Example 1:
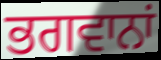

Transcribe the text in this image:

ਭਗਵਾਨਾਂ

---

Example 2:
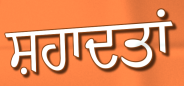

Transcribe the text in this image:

ਸ਼ਹਾਦਤਾਂ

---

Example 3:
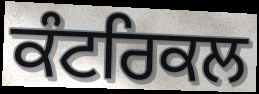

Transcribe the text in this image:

ਕੰਟਰਿਕਲ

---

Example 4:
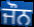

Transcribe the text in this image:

ਜੌਨ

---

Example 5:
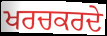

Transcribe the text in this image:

ਖਰਚਕਰਦੇ